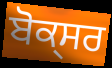
ਬੋਕ੍ਸਰ